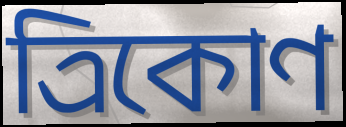
ত্রিকোণ